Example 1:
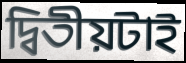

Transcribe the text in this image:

দ্বিতীয়টাই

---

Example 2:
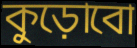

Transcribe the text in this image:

কুড়োবো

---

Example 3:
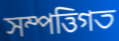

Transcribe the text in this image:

সম্পত্তিগত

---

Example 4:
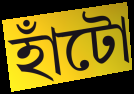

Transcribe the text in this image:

হাঁটো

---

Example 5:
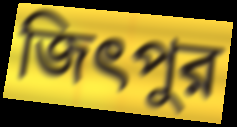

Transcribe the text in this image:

জিৎপুর